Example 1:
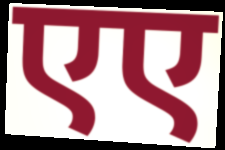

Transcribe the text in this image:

एए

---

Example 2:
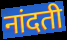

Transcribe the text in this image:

नांदती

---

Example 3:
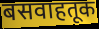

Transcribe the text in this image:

बसवाहतूक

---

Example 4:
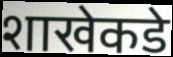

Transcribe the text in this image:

शाखेकडे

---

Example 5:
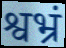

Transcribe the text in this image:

श्वभ्रं